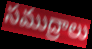
సముద్రాలు